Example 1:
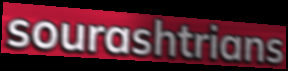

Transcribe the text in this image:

sourashtrians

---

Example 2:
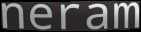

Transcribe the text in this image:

neram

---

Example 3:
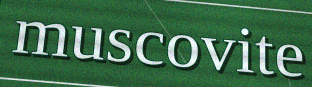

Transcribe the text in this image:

muscovite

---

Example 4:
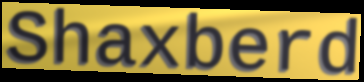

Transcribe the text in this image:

Shaxberd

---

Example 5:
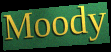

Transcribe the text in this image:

Moody